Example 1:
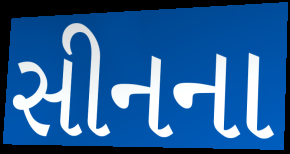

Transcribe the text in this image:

સીનના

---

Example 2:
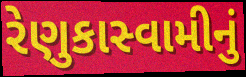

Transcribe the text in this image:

રેણુકાસ્વામીનું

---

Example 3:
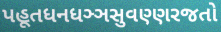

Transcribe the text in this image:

પહૂતધનધઞ્ઞસુવણ્ણરજતો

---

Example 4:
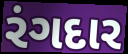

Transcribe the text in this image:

રંગદાર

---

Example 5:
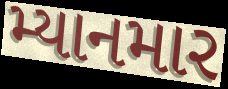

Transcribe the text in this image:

મ્યાનમાર